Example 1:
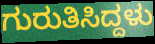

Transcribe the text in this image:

ಗುರುತಿಸಿದ್ದಳು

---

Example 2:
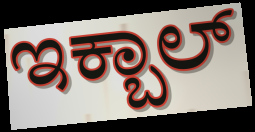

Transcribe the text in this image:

ಇಕ್ಬಾಲ್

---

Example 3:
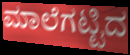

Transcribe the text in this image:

ಮಾಲೆಗಟ್ಟಿದ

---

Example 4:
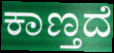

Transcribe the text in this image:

ಕಾಣ್ತದೆ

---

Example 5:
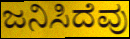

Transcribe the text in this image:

ಜನಿಸಿದೆವು